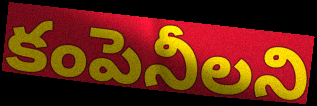
కంపెనీలని